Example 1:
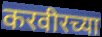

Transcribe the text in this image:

करवीरच्या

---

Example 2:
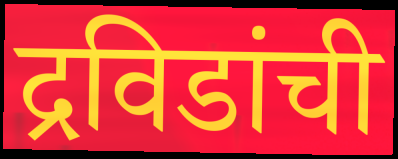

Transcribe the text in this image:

द्रविडांची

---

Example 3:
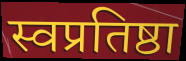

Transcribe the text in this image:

स्वप्रतिष्ठा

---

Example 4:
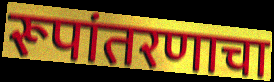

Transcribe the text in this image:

रूपांतरणाचा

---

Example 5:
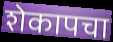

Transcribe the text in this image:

शेकापचा